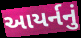
આયર્નનું